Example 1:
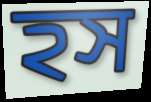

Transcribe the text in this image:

হস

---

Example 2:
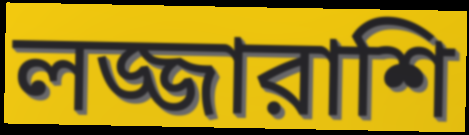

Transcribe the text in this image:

লজ্জারাশি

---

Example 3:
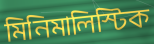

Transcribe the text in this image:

মিনিমালিস্টিক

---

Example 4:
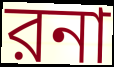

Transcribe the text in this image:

রনা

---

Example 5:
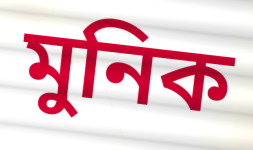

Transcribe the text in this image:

মুনিক